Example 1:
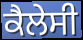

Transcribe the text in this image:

ਕੈਲੇਸੀ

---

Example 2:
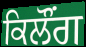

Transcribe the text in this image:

ਕਿਲੌਂਗ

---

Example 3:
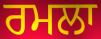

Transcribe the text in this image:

ਰਮਲਾ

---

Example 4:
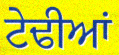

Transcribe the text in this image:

ਟੇਢੀਆਂ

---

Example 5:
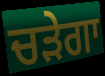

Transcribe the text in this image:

ਚੜੇਗਾ